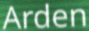
Arden